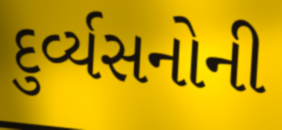
દુર્વ્યસનોની